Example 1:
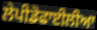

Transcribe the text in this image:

ਲੇਪੀਡੋਫਾਈਲੀਆ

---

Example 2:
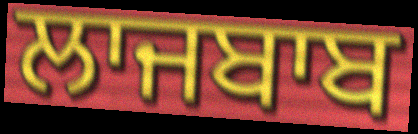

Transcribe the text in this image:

ਲਾਜਬਾਬ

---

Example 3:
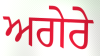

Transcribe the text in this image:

ਅਗੇਰੇ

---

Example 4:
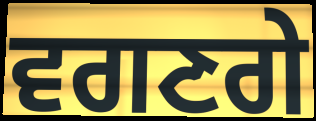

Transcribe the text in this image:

ਵਗਣਗੇ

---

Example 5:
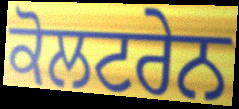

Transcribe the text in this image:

ਕੋਲਟਰੇਨ